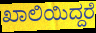
ಖಾಲಿಯಿದ್ದರೆ